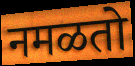
नमळतो